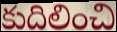
కుదిలించి